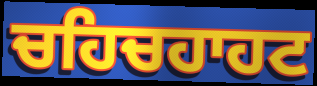
ਚਹਿਚਹਾਹਟ